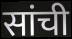
सांची